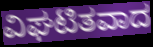
ವಿಘಟಿತವಾದ